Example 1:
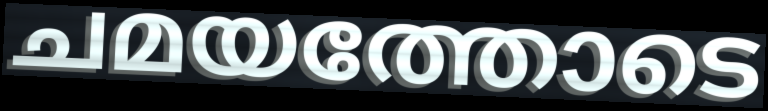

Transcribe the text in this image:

ചമയത്തോടെ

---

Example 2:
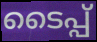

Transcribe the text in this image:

ടൈപ്പ്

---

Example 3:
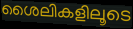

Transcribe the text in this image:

ശൈലികളിലൂടെ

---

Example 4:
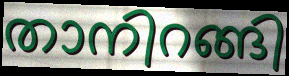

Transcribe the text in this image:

താനിറങ്ങി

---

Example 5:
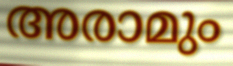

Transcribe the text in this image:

അരാമും